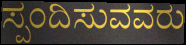
ಸ್ಪಂದಿಸುವವರು